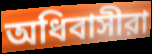
অধিবাসীরা